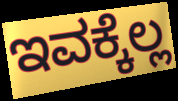
ಇವಕ್ಕೆಲ್ಲ